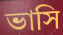
ভাসি